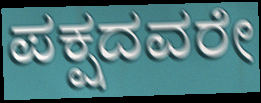
ಪಕ್ಷದವರೇ